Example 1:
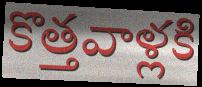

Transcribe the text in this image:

కొత్తవాళ్లకి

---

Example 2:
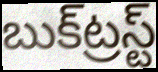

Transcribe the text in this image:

బుక్‌ట్రస్ట్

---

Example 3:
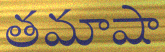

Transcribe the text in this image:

తమాషా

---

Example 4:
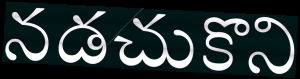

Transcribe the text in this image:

నడచుకొని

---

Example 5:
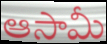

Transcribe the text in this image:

ఆసామీ